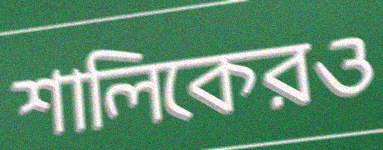
শালিকেরও